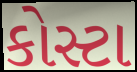
કોસ્ટા